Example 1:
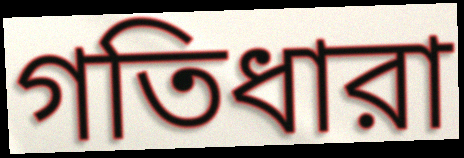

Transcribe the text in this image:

গতিধারা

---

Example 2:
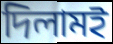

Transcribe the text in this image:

দিলামই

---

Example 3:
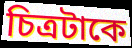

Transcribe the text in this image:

চিত্রটাকে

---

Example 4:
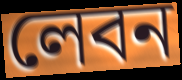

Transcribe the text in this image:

লেবন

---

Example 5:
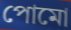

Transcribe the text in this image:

পোমো